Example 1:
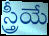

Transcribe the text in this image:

స్త్రీయే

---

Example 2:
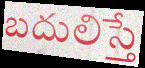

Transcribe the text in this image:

బదులిస్తే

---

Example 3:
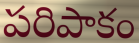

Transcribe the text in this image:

పరిపాకం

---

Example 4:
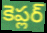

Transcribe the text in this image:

కెప్లర్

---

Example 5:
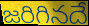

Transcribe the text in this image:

జరిగినదే